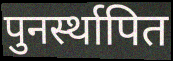
पुनर्स्थापित